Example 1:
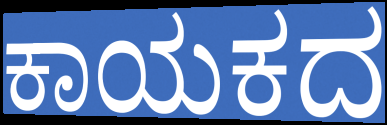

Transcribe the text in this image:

ಕಾಯಕದ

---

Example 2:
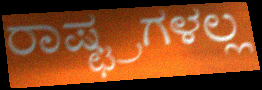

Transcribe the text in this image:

ರಾಷ್ಟ್ರಗಳಲ್ಲ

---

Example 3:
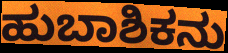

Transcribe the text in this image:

ಹುಬಾಶಿಕನು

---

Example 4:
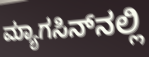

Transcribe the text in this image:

ಮ್ಯಾಗಸಿನ್‍ನಲ್ಲಿ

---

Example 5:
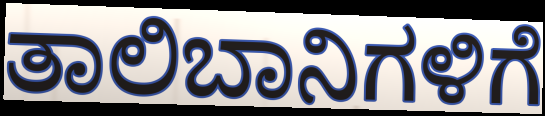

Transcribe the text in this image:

ತಾಲಿಬಾನಿಗಳಿಗೆ